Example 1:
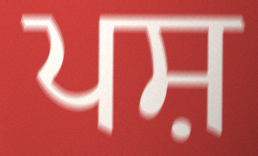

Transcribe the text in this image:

ਪਸ਼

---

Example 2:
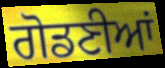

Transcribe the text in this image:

ਗੋਡਣੀਆਂ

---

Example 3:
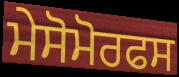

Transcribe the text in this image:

ਮੇਸੋਮੋਰਫਸ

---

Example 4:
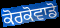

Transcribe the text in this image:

ਕੋਰਕੋਵਾਡੋ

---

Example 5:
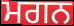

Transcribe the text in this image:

ਮਗਨ